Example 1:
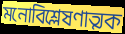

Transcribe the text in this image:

মনোবিশ্লেষণাত্মক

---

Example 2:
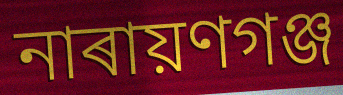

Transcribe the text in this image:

নাৰায়ণগঞ্জ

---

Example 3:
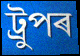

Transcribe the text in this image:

ট্ৰুপৰ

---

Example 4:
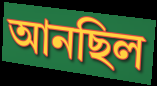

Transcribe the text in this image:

আনছিল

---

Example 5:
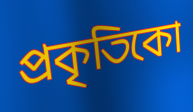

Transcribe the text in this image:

প্ৰকৃতিকো